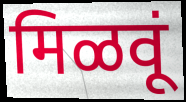
मिळवूं